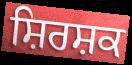
ਸ਼ਿਰਸ਼ਕ